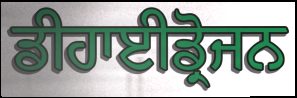
ਡੀਹਾਈਡ੍ਰੋਜਨ